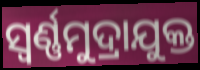
ସ୍ବର୍ଣ୍ଣମୁଦ୍ରାଯୁକ୍ତ